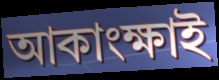
আকাংক্ষাই